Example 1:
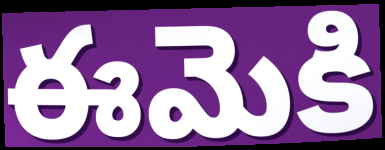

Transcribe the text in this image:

ఈమెకి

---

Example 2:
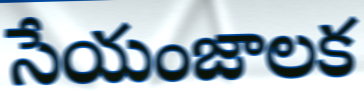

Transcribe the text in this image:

సేయంజాలక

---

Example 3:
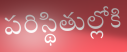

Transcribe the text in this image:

పరిస్థితుల్లోకి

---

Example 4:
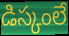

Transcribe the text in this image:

డిస్కంలే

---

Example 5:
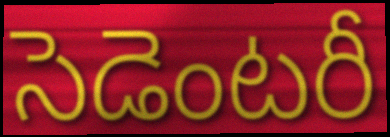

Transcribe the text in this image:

సెడెంటరీ